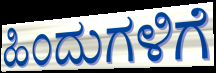
ಹಿಂದುಗಳಿಗೆ